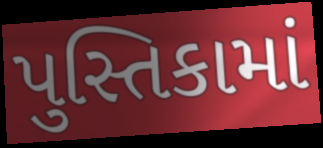
પુસ્તિકામાં